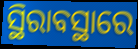
ସ୍ଥିରାବସ୍ଥାରେ